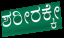
ಶರೀರಕ್ಕೇ